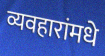
व्यवहारांमधे